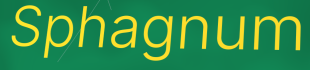
Sphagnum